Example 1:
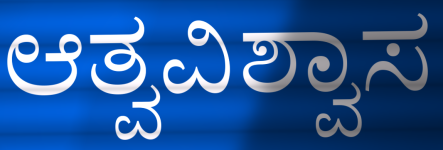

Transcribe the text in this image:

ಆತ್ವವಿಶ್ವಾಸ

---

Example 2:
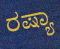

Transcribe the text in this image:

ರಷ್ಯಾ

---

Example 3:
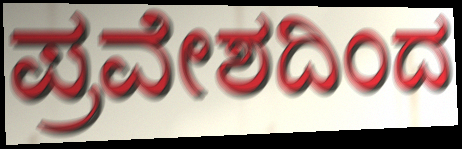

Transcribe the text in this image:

ಪ್ರವೇಶದಿಂದ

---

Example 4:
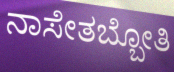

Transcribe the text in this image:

ನಾಸೇತಬ್ಬೋತಿ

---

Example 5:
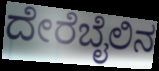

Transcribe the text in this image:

ದೇರೆಬೈಲಿನ